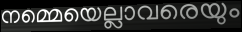
നമ്മെയെല്ലാവരെയും